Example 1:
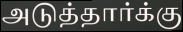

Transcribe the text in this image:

அடுத்தார்க்கு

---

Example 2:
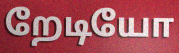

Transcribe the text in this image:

றேடியோ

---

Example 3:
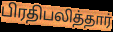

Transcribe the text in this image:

பிரதிபலித்தார்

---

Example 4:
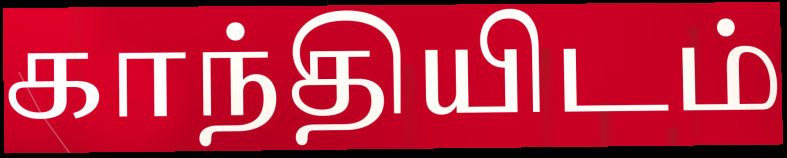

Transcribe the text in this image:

காந்தியிடம்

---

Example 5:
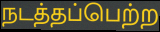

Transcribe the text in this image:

நடத்தப்பெற்ற